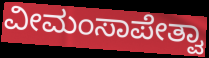
ವೀಮಂಸಾಪೇತ್ವಾ